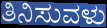
ತಿನಿಸುವಳು